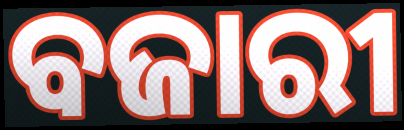
ବଜାରୀ